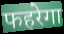
फहरेगा